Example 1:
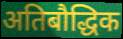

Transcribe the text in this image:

अतिबौद्धिक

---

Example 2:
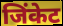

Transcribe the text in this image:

जिंकेट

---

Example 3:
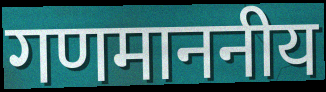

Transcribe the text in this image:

गणमाननीय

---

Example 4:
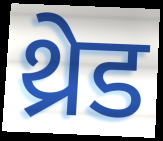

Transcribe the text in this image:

थ्रेड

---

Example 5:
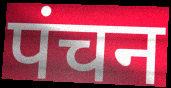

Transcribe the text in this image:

पंचन